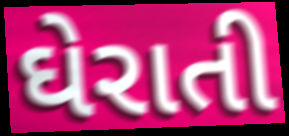
ઘેરાતી